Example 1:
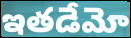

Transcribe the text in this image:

ఇతడేమో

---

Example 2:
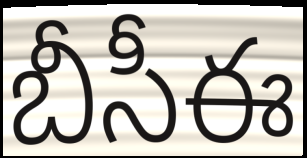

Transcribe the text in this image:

బీసీఈ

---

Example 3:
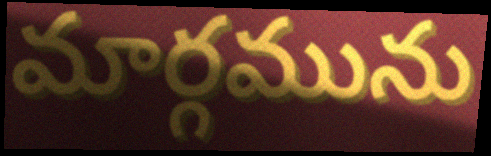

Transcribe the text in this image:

మార్గమును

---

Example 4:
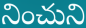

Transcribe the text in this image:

నించుని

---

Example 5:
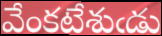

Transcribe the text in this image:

వేంకటేశుఁడు